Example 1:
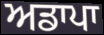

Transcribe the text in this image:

ਅਡਾਪਾ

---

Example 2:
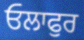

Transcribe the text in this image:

ਓਲਾਫੁਰ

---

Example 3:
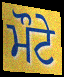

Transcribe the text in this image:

ਮੌਟੇ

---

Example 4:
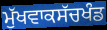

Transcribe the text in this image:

ਮੁੱਖਵਾਕਸੱਚਖੰਡ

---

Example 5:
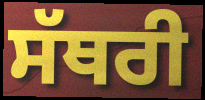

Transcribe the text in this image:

ਸੱਥਰੀ